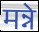
मन्ने